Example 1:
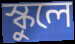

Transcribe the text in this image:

স্কুলে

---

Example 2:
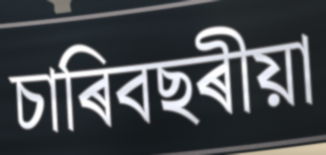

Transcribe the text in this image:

চাৰিবছৰীয়া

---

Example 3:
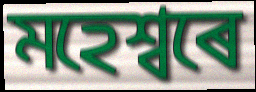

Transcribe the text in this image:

মহেশ্বৰে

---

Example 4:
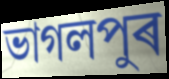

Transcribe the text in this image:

ভাগলপুৰ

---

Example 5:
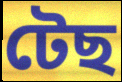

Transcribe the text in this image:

টেছ